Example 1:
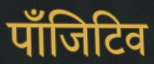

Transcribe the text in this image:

पाँजिटिव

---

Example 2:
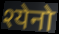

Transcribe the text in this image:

श्येनो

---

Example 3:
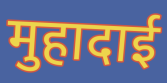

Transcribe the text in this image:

मुहादाई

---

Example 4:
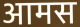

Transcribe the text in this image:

आमस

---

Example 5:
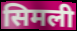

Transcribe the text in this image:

सिमली